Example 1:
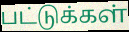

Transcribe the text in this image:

பட்டுக்கள்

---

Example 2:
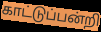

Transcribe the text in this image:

காட்டுப்பன்றி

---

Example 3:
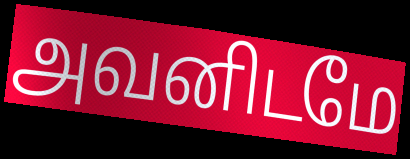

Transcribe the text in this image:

அவனிடமே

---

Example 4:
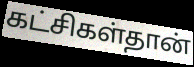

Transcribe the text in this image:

கட்சிகள்தான்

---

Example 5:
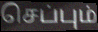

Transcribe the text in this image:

செப்பும்